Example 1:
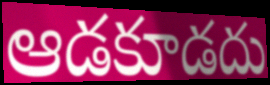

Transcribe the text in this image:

ఆడకూడదు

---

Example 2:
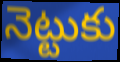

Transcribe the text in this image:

నెట్టుకు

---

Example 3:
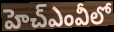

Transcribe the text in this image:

హెచ్ఎంవీలో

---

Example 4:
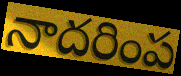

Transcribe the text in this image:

నాదరింప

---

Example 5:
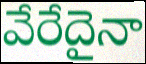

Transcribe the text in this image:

వేరేదైనా